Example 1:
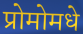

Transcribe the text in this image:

प्रोमोमधे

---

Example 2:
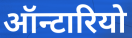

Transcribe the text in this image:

ऑन्टारियो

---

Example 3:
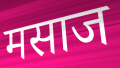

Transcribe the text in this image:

मसाज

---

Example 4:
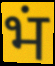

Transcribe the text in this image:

भं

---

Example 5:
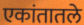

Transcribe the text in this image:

एकांतातले